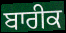
ਬਾਰੀਕ